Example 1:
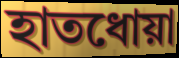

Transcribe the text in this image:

হাতধোয়া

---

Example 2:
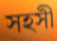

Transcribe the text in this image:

সহসী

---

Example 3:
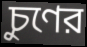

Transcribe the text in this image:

চুণের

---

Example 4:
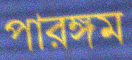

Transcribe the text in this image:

পারঙ্গম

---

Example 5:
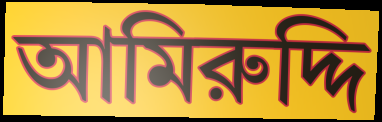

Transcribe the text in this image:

আমিরুদ্দি